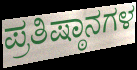
ಪ್ರತಿಷ್ಠಾನಗಳ